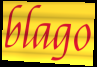
blago